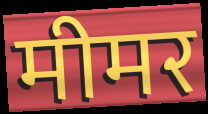
मीमर